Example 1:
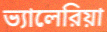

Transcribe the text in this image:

ভ্যালেরিয়া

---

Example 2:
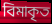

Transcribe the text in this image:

বিমাকৃত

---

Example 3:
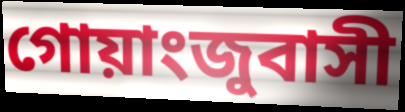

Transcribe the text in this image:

গোয়াংজুবাসী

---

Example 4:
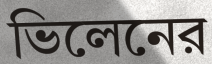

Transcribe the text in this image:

ভিলেনের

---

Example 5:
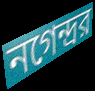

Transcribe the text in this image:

নগেন্দ্রর